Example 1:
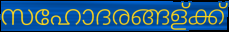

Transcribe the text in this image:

സഹോദരങ്ങള്ക്ക്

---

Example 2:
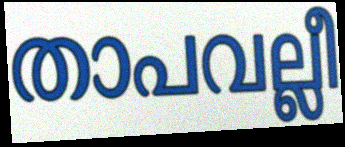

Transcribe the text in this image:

താപവല്ലീ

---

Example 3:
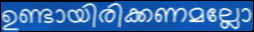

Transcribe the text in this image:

ഉണ്ടായിരിക്കണമല്ലോ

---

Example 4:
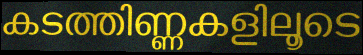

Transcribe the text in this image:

കടത്തിണ്ണകളിലൂടെ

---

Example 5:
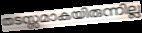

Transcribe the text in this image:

തടസ്സമാകയിരുന്നില്ല